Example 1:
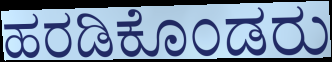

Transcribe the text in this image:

ಹರಡಿಕೊಂಡರು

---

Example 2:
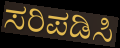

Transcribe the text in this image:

ಸರಿಪಡಿಸಿ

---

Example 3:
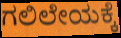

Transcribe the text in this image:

ಗಲಿಲೇಯಕ್ಕೆ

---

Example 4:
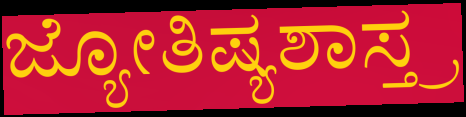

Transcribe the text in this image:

ಜ್ಯೋತಿಷ್ಯಶಾಸ್ತ್ರ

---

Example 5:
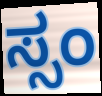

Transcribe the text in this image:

ಸ್ಸಂ